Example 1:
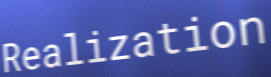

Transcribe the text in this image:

Realization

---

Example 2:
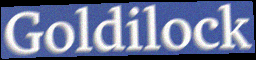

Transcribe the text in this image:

Goldilock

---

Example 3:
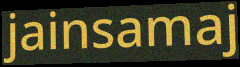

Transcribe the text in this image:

jainsamaj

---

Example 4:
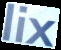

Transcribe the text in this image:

lix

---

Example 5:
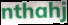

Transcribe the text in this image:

nthahj